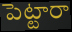
పెట్టారా